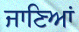
ਜਾਣਿਆਂ